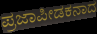
ಪ್ರಜಾಪೀಡಕನಾದ